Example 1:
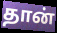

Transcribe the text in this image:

தான்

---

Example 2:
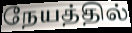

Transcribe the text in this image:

நேயத்தில்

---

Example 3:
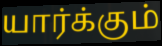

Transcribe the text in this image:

யார்க்கும்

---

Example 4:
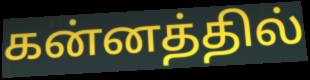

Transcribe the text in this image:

கன்னத்தில்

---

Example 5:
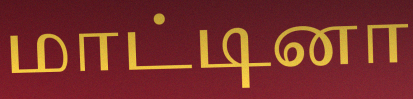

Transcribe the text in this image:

மாட்டினா